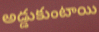
అడ్డుకుంటాయి